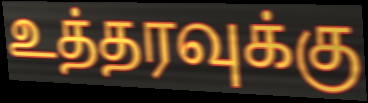
உத்தரவுக்கு